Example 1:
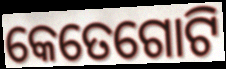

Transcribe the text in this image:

କେତେଗୋଟି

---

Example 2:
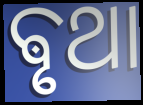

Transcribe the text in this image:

ଵୃଥା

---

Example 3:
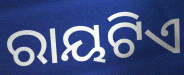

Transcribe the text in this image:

ରାୟଟିଏ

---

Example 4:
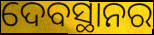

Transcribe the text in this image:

ଦେବସ୍ଥାନର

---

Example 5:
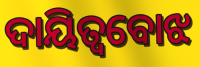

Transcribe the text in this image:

ଦାୟିତ୍ୱବୋଝ